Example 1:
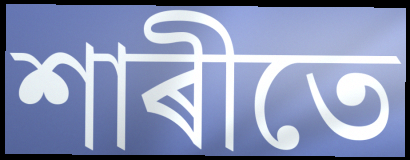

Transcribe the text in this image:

শাৰীতে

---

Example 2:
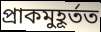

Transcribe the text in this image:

প্ৰাকমুহূৰ্তত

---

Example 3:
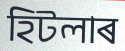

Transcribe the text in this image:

হিটলাৰ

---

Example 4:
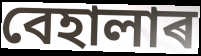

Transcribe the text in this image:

বেহালাৰ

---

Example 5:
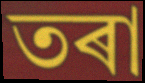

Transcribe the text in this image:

তৰা